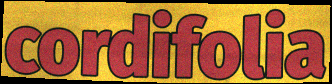
cordifolia